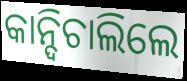
କାନ୍ଦିଚାଲିଲେ